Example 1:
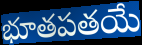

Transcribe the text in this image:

భూతపతయే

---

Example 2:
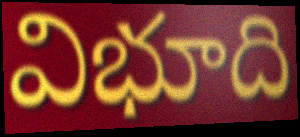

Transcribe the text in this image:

విభూది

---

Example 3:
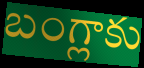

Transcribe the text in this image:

బంగ్లాకు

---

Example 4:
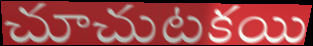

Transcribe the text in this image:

చూచుటకయి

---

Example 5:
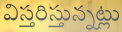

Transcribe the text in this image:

విస్తరిస్తున్నట్లు